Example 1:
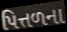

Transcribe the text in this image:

પિત્તળના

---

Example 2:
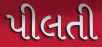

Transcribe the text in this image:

પીલતી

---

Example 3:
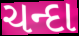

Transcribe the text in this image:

ચન્દા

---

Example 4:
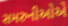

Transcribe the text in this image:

સમરુનીઓએ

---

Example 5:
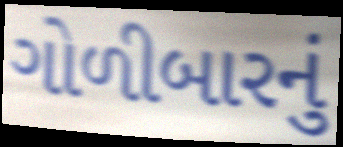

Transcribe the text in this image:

ગોળીબારનું